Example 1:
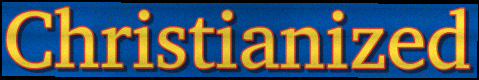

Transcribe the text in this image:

Christianized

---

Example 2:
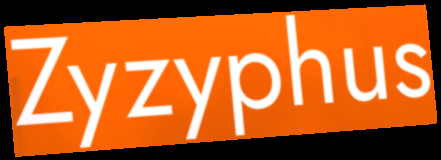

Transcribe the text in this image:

Zyzyphus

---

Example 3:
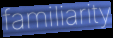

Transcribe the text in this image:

familiarity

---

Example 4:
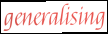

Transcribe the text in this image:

generalising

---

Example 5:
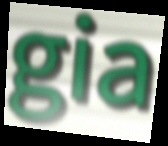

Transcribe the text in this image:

gia